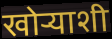
खोऱ्याशी